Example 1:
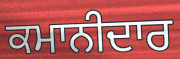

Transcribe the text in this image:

ਕਮਾਨੀਦਾਰ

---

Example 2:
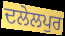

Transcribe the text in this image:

ਦਲੇਲਪੁਰ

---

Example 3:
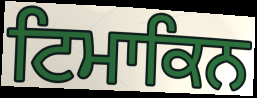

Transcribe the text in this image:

ਟਿਮਾਕਿਨ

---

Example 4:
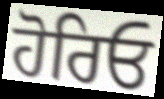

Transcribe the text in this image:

ਹੋਰਿਓ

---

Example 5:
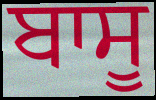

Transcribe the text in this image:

ਬਾਸੂ